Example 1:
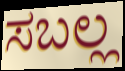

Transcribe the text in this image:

ಸಬಲ್ಲ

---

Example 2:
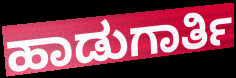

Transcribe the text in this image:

ಹಾಡುಗಾರ್ತಿ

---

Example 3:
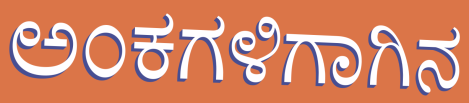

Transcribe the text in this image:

ಅಂಕಗಳಿಗಾಗಿನ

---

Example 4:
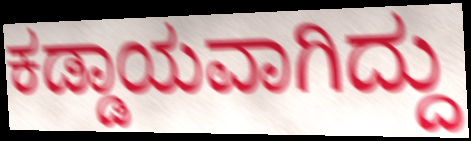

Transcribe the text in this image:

ಕಡ್ಡಾಯವಾಗಿದ್ದು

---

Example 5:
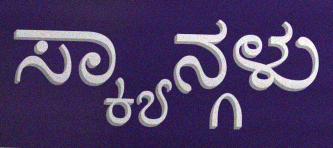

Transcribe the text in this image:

ಸ್ಕ್ಯಾನ್ಗಳು